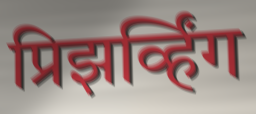
प्रिझर्व्हिंग